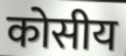
कोसीय